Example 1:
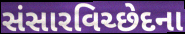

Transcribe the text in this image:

સંસારવિચ્છેદના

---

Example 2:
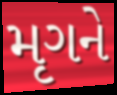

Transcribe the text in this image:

મૃગને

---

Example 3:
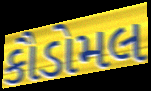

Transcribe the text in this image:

કૌડોમલ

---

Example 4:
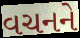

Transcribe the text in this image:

વચનને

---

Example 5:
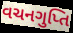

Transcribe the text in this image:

વચનગુપ્તિ